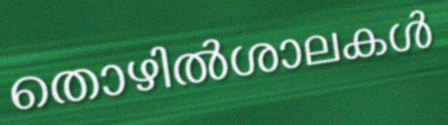
തൊഴിൽശാലകൾ